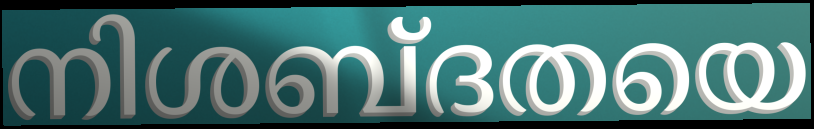
നിശബ്ദതയെ